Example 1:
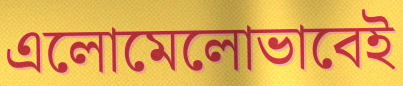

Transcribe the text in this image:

এলোমেলোভাবেই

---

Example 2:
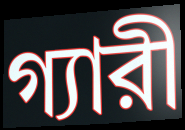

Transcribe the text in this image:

গ্যারী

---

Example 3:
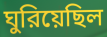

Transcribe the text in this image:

ঘুরিয়েছিল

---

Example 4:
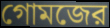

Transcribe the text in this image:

গোমজের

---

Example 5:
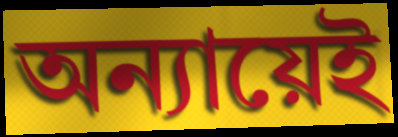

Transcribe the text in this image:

অন্যায়েই